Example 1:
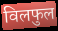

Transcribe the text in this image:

विलफुल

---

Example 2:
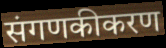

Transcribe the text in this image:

संगणकीकरण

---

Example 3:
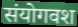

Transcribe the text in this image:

संयोगवश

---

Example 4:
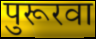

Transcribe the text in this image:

पुरूरवा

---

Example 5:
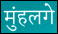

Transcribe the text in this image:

मुंहलगे